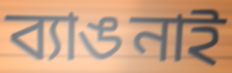
ব্যাঙনাই